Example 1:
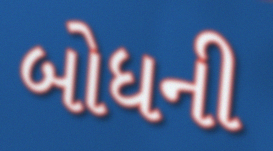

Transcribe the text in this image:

બોધની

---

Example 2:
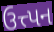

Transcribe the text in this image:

ઉત્ત્પન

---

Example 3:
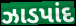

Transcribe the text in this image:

ઝાડપાંદ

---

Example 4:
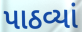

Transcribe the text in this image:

પાઠવ્યાં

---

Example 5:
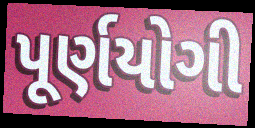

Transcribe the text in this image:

પૂર્ણયોગી